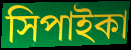
সিপাইকা